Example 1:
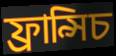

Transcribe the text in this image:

ফ্ৰান্সিচ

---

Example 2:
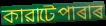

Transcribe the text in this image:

কাৱাটেপাৰাৰ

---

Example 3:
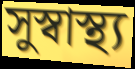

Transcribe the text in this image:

সুস্বাস্থ্য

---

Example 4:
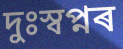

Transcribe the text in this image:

দুঃস্বপ্নৰ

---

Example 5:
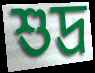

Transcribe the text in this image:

শুদ্ৰ